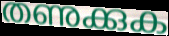
തണുക്കുക